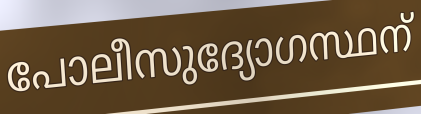
പോലീസുദ്യോഗസ്ഥന്